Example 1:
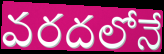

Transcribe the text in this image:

వరదలోనే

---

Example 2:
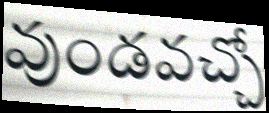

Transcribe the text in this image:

వుండవచ్చో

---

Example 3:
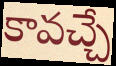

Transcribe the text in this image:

కావచ్చే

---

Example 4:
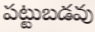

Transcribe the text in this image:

పట్టుబడవు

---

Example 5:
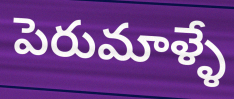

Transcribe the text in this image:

పెరుమాళ్ళే